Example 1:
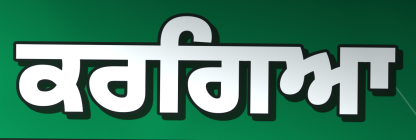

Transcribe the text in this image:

ਕਰਗਿਆ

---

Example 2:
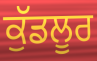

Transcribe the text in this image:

ਕੁੱਡਲੂਰ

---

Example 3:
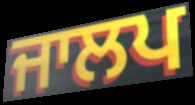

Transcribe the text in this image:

ਜਾਲਪ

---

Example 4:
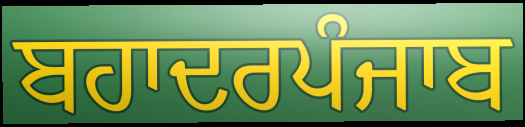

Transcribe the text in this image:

ਬਹਾਦਰਪੰਜਾਬ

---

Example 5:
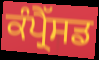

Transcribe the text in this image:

ਕੰਪ੍ਰੈੱਸਡ